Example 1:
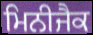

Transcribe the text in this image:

ਮਿਨੀਜੈਕ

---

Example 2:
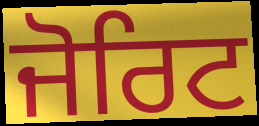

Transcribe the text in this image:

ਜੋਰਿਟ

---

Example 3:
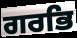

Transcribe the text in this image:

ਗਰਭਿ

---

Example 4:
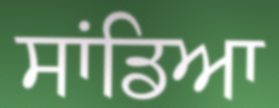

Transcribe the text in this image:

ਸਾਂਡਿਆ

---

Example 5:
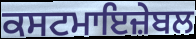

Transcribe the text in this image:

ਕਸਟਮਾਇਜ਼ੇਬਲ